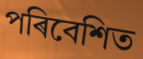
পৰিবেশিত